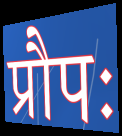
प्रौपः